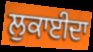
ਲੁਕਾਈਦਾ